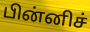
பின்னிச்